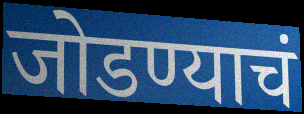
जोडण्याचं